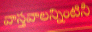
వాస్తవాలన్నింటినీ